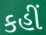
કહીં